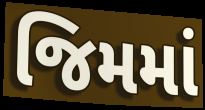
જિમમાં